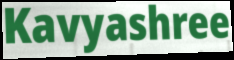
Kavyashree